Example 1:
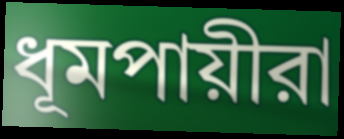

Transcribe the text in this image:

ধূমপায়ীরা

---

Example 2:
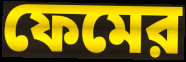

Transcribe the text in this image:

ফেমের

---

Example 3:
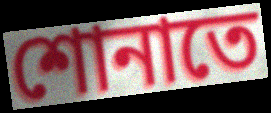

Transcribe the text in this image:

শোনাতে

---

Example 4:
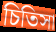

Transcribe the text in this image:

চিতিসা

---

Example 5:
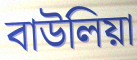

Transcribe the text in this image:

বাউলিয়া